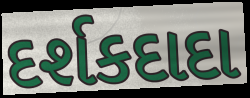
દર્શકદાદા